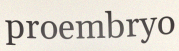
proembryo